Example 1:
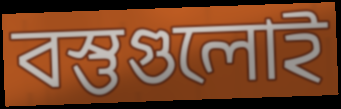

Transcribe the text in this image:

বস্তুগুলোই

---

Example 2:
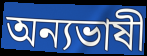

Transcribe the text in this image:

অন্যভাষী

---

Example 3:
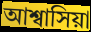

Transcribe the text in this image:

আশ্বাসিয়া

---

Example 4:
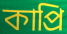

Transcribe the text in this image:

কাপ্রি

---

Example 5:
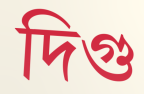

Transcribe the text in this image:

দিগু